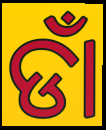
ଡାଁ